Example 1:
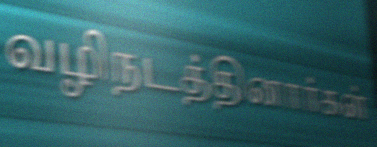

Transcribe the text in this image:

வழிநடத்தினார்கள்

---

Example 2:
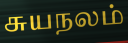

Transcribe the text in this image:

சுயநலம்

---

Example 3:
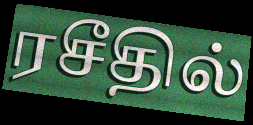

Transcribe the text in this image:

ரசீதில்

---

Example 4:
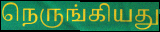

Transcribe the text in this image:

நெருங்கியது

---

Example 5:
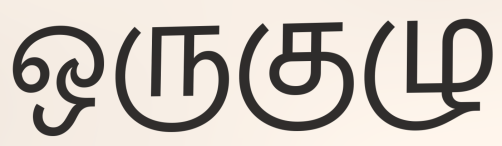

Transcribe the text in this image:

ஒருகுழு